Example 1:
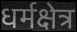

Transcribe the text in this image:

धर्मक्षेत्र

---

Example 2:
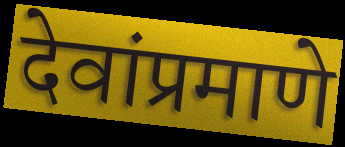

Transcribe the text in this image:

देवांप्रमाणे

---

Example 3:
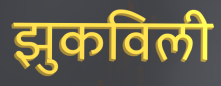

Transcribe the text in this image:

झुकविली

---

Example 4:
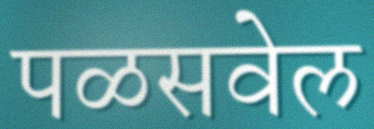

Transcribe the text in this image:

पळसवेल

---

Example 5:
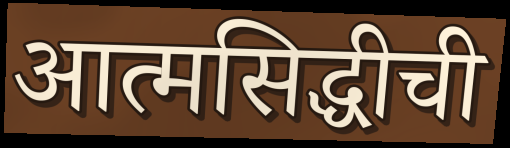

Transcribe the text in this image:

आत्मसिद्धीची